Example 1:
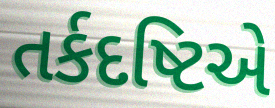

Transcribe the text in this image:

તર્કદષ્ટિએ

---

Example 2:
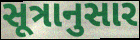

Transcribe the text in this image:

સૂત્રાનુસાર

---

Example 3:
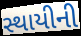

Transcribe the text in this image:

સ્થાયીની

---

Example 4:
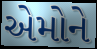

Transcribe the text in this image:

એમોને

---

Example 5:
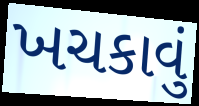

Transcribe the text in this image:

ખચકાવું